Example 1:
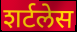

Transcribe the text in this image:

शर्टलेस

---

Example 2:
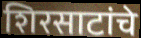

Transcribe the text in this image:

शिरसाटांचे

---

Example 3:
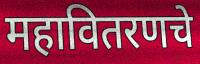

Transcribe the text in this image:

महावितरणचे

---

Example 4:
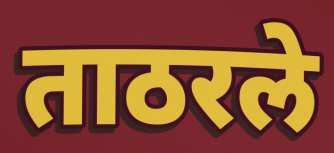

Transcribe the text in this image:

ताठरले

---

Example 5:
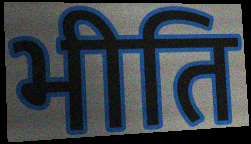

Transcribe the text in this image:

भीति